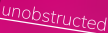
unobstructed